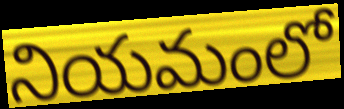
నియమంలో